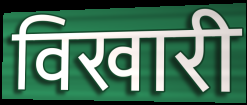
विखारी